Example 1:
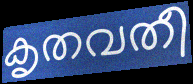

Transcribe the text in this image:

കൃതവതീ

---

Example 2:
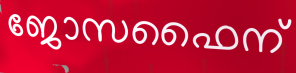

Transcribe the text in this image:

ജോസഫൈന്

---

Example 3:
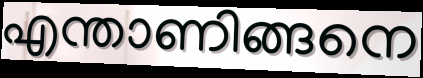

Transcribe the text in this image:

എന്താണിങ്ങനെ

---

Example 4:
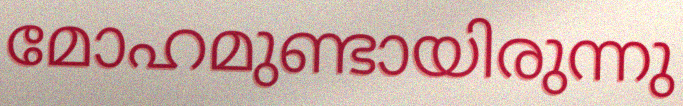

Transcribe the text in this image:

മോഹമുണ്ടായിരുന്നു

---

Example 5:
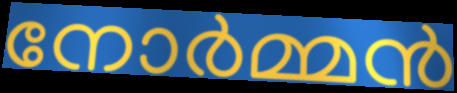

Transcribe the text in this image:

നോർമ്മൻ